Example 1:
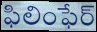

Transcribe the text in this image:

ఫిలింఫేర్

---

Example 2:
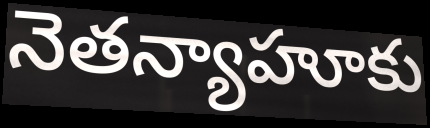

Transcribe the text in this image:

నెతన్యాహూకు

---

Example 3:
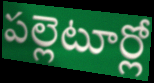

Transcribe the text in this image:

పల్లెటూర్లో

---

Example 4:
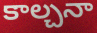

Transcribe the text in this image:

కాల్చనా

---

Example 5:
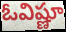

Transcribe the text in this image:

ఓవిష్ణూ